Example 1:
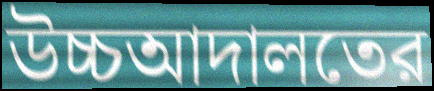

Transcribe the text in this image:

উচ্চআদালতের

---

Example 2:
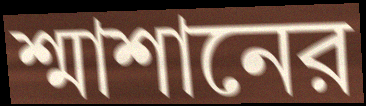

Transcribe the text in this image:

শ্মাশানের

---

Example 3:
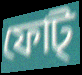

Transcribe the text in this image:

ফোট্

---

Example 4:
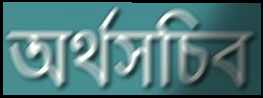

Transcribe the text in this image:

অর্থসচিব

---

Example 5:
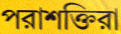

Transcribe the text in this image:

পরাশক্তিরা